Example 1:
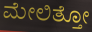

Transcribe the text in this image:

ಮೇಲಿತ್ತೋ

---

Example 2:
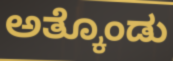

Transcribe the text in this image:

ಅತ್ಕೊಂಡು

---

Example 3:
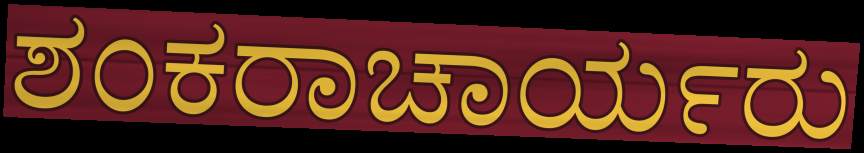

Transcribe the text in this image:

ಶಂಕರಾಚಾರ್ಯರು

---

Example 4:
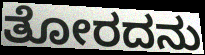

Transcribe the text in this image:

ತೋರದನು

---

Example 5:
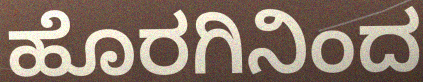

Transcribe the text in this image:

ಹೊರಗಿನಿಂದ